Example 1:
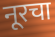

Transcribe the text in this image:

नूरचा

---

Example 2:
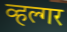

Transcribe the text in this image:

व्हल्गर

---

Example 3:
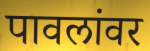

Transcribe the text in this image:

पावलांवर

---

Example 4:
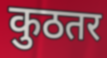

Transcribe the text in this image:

कुठतर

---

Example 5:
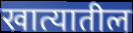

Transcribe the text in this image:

खात्यातील